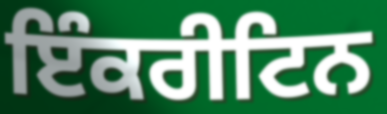
ਇੰਕਰੀਟਿਨ